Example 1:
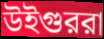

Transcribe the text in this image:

উইগুররা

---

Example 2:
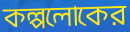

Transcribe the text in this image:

কল্পলোকের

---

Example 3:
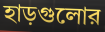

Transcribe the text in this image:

হাড়গুলোর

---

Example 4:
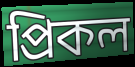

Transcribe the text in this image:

প্রিকল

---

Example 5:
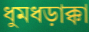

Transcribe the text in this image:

ধুমধড়াক্কা